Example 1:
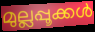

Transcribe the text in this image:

മുല്ലപ്പൂക്കൾ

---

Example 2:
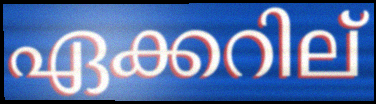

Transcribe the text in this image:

ഏക്കറില്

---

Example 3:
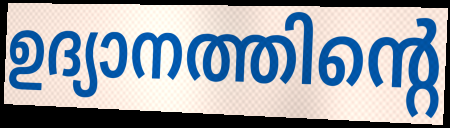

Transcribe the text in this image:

ഉദ്യാനത്തിന്റെ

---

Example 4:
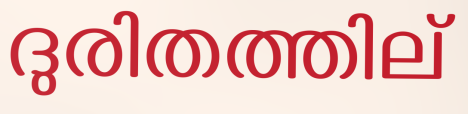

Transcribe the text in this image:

ദുരിതത്തില്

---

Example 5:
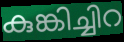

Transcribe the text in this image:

കുങ്കിച്ചിറ